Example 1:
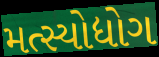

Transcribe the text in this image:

મત્સ્યોદ્યોગ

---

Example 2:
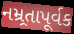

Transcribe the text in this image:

નમ્ર્રતાપૂર્વક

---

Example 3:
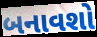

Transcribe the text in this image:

બનાવશો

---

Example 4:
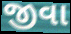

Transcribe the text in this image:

જીવા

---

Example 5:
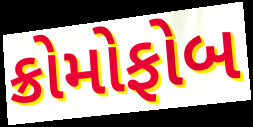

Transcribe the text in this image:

ક્રોમોફોબ